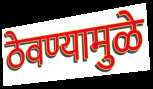
ठेवण्यामुळे